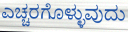
ಎಚ್ಚರಗೊಳ್ಳುವುದು